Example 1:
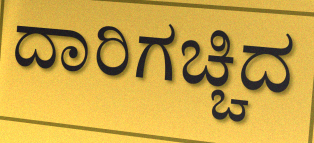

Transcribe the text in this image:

ದಾರಿಗಚ್ಚಿದ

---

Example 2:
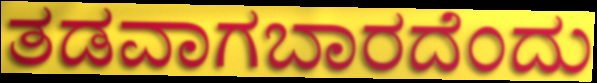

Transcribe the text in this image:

ತಡವಾಗಬಾರದೆಂದು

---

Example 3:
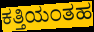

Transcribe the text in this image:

ಕತ್ತಿಯಂತಹ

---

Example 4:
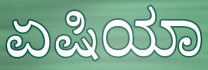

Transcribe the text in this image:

ಏಷಿಯಾ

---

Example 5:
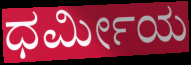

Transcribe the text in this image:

ಧರ್ಮೀಯ